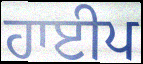
ਹਾਈਪ